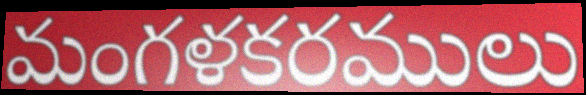
మంగళకరములు